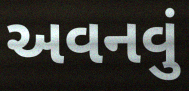
અવનવું